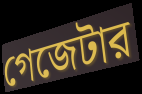
গেজেটার